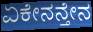
ಏಕೇನನ್ತೇನ